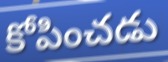
కోపించడు